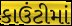
કાઉંટીમાં